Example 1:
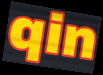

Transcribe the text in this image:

qin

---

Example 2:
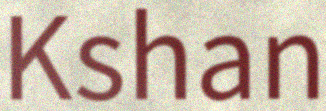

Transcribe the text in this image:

Kshan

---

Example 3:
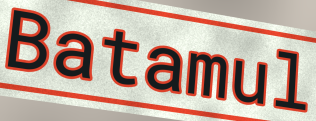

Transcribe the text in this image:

Batamul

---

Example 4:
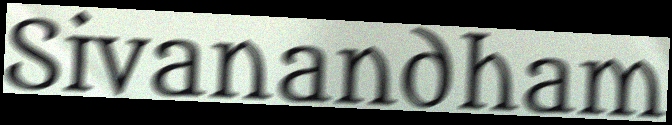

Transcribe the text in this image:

Sivanandham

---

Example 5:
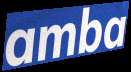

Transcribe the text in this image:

amba